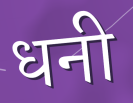
धनी